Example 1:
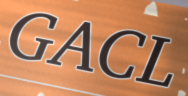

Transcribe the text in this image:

GACL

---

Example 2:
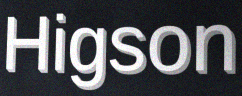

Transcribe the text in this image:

Higson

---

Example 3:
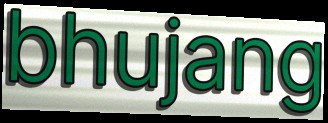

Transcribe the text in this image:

bhujang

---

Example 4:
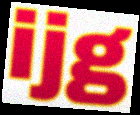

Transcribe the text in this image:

ijg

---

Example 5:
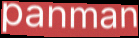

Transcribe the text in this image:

panman